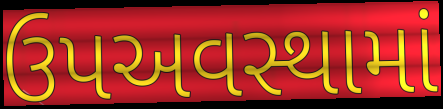
ઉપઅવસ્થામાં